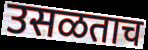
उसळताच